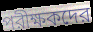
পরীক্ষকদের